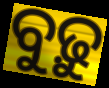
ବୁଢ଼ୁ